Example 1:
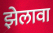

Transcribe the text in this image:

झेलावा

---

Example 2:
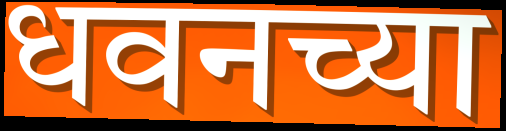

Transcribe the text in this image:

धवनच्या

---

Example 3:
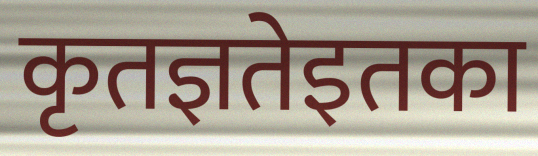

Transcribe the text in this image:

कृतज्ञतेइतका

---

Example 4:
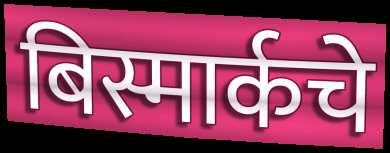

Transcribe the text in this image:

बिस्मार्कचे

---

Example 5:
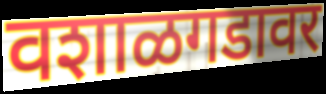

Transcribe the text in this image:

वशाळगडावर